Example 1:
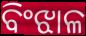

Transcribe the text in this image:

ବିଂଝାଳ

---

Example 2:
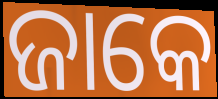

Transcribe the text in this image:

ଜାକେ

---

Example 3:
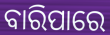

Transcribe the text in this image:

ବାରିପାରେ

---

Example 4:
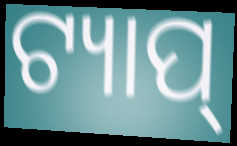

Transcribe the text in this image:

ଟ୍ୟାପ୍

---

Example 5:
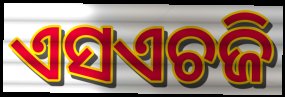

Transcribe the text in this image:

ଏସଏଚଜି